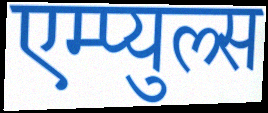
एम्प्युल्स